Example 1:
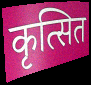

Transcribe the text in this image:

कृत्सित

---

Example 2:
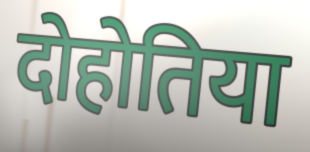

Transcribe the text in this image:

दोहोतिया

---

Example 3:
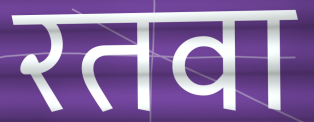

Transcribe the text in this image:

रतवा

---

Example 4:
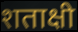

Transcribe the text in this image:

शताक्षी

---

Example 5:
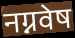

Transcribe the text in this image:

नग्नवेष